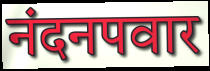
नंदनपवार